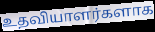
உதவியாளர்களாக